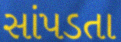
સાંપડતા